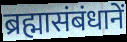
ब्रह्मासंबंधानें